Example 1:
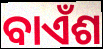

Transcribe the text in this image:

ବାଏଁଶ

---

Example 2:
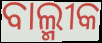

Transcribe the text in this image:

ବାଲ୍ମୀକ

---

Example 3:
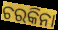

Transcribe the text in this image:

ଚରକିନା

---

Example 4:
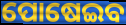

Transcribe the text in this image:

ପୋଷେଇବ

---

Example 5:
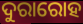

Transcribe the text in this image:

ଦୁରାରୋହ